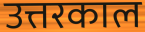
उत्तरकाल